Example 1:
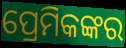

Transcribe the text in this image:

ପ୍ରେମିକଙ୍କର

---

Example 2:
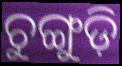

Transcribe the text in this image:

ଚୁଙ୍ଗୁଡ଼ି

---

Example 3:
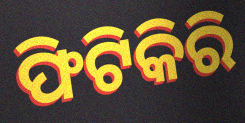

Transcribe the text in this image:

ଫିଟିକିରି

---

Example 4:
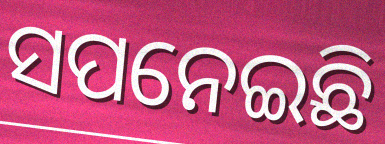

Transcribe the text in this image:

ସପନେଇଛି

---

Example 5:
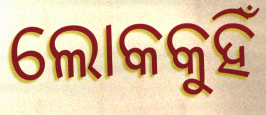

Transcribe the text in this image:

ଲୋକକୁହିଁ